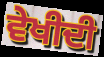
ਵੇਖੀਦੀ